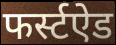
फर्स्टऐड